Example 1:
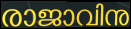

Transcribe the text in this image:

രാജാവിനു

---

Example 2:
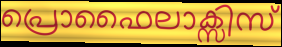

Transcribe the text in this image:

പ്രൊഫൈലാക്സിസ്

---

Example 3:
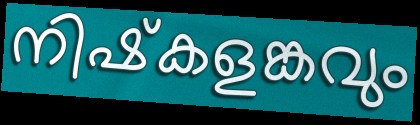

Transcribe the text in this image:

നിഷ്‌കളങ്കവും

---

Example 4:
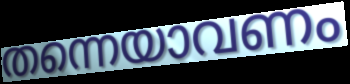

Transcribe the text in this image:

തന്നെയാവണം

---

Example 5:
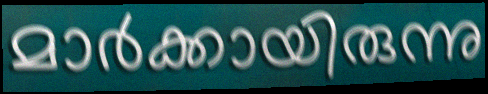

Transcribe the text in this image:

മാർക്കായിരുന്നു